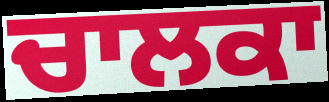
ਚਾਲਕਾ